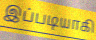
இப்படியாகி